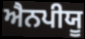
ਐਨਪੀਯੂ